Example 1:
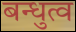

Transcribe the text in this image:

बन्धुत्व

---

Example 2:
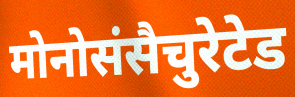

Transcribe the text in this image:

मोनोसंसैचुरेटेड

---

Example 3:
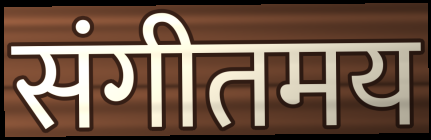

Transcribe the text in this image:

संगीतमय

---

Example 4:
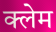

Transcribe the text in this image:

क्लेम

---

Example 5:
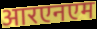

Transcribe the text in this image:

आरएनएम